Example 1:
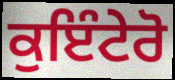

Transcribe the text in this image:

ਕੁਇੰਟੇਰੋ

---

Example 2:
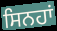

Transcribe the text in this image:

ਸਿਨਹਾਂ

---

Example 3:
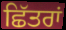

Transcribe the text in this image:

ਛਿੱਤਰਾਂ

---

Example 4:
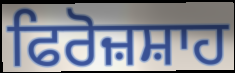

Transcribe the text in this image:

ਫਿਰੋਜ਼ਸ਼ਾਹ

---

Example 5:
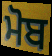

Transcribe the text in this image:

ਮੋਬ